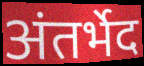
अंतर्भेद